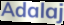
Adalaj